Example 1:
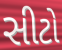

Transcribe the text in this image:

સીટો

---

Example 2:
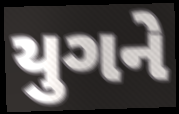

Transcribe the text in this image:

યુગને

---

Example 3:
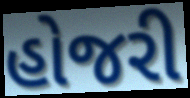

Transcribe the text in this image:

હોજરી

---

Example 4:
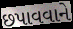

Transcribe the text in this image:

છપાવવાને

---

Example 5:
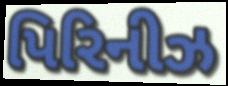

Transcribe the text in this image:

પિરિનીઝ